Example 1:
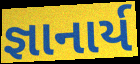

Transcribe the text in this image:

જ્ઞાનાર્ય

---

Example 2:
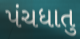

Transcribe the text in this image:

પંચધાતુ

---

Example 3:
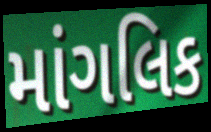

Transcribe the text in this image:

માંગલિક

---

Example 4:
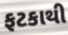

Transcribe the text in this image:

ફટકાથી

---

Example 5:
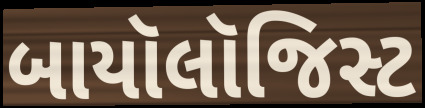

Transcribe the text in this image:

બાયૉલૉજિસ્ટ